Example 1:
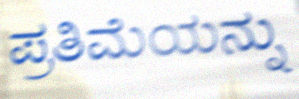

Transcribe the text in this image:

ಪ್ರತಿಮೆಯನ್ನು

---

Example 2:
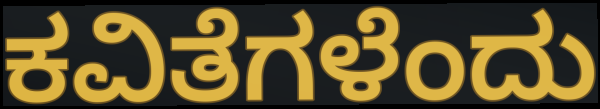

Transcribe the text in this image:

ಕವಿತೆಗಳೆಂದು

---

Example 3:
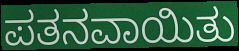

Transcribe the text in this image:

ಪತನವಾಯಿತು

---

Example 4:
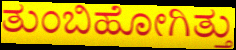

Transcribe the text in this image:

ತುಂಬಿಹೋಗಿತ್ತು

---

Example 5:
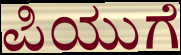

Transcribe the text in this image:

ಪಿಯುಗೆ